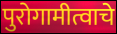
पुरोगामीत्वाचे